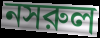
নসরুল